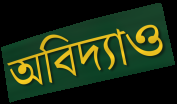
অবিদ্যাও